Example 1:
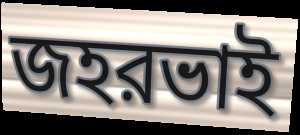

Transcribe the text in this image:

জহরভাই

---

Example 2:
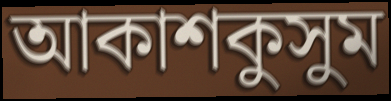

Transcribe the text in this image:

আকাশকুসুম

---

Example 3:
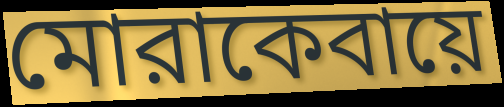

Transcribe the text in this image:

মোরাকেবায়ে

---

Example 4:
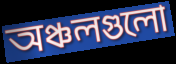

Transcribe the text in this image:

অঞ্চলগুলো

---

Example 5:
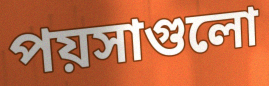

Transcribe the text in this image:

পয়সাগুলো